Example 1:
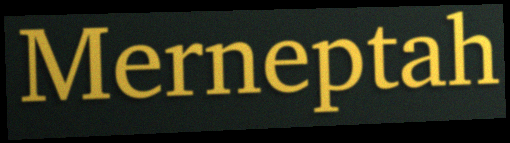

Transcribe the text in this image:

Merneptah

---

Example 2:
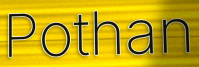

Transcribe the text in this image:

Pothan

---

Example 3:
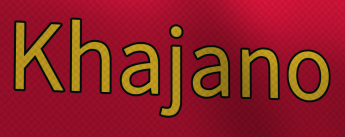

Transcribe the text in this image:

Khajano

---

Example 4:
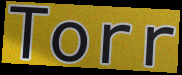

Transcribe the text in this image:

Torr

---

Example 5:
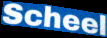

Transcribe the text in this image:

Scheel